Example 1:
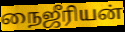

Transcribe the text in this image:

நைஜீரியன்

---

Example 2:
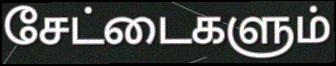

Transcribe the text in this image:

சேட்டைகளும்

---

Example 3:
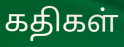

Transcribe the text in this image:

கதிகள்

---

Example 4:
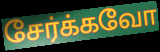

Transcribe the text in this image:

சேர்க்கவோ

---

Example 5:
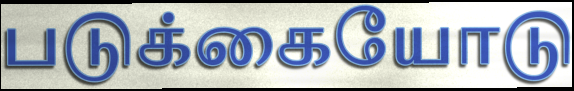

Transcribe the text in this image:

படுக்கையோடு